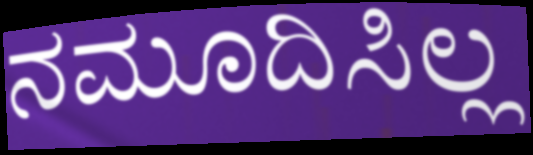
ನಮೂದಿಸಿಲ್ಲ